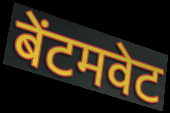
बेंटमवेट